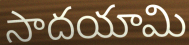
సాదయామి